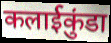
कलाईकुंडा